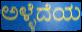
ಅಳ್ಳೆದೆಯ